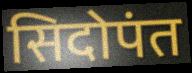
सिदोपंत